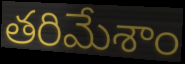
తరిమేశాం